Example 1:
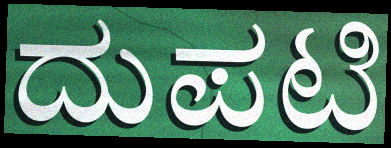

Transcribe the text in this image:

ದುಪಟಿ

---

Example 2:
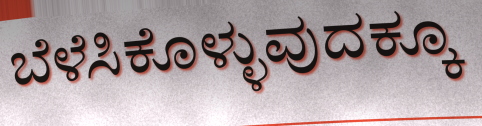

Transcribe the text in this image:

ಬೆಳೆಸಿಕೊಳ್ಳುವುದಕ್ಕೂ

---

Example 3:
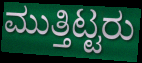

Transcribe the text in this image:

ಮುತ್ತಿಟ್ಟರು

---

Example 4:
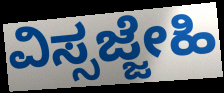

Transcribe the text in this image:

ವಿಸ್ಸಜ್ಜೇಹಿ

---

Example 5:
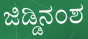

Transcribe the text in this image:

ಜಿಡ್ಡಿನಂಶ